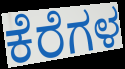
ಕೆರೆಗಳ